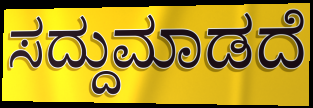
ಸದ್ದುಮಾಡದೆ